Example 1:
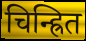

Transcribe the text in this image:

चिन्ह्रित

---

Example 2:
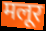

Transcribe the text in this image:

मलूर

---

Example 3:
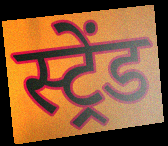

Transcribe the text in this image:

स्ट्रेंड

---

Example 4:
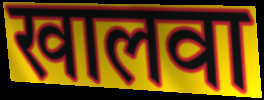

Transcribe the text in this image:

खालवा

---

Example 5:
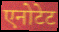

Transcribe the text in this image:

एनोटेट